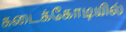
கடைக்கோடியில்